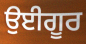
ਉਈਗੂਰ